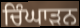
ਚਿੰਘਾੜਨ